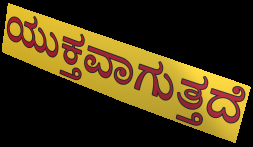
ಯುಕ್ತವಾಗುತ್ತದೆ